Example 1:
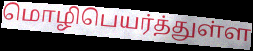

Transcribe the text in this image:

மொழிபெயர்த்துள்ள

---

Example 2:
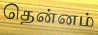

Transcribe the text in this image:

தென்னம்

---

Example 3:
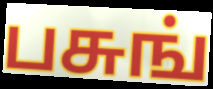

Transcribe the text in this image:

பசுங்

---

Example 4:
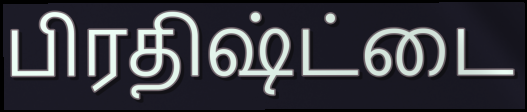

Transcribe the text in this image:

பிரதிஷ்ட்டை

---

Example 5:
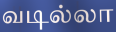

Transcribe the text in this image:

வடில்லா